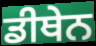
ਡੀਥੇਨ